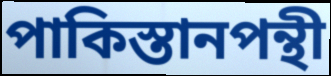
পাকিস্তানপন্থী